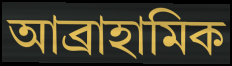
আব্ৰাহামিক